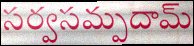
సర్వసమ్పదామ్